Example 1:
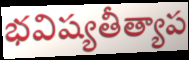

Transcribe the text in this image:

భవిష్యతీత్యాప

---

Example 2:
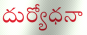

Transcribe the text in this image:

దుర్యోధనా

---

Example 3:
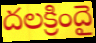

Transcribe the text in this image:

దలక్రిందై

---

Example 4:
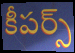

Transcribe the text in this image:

కీపర్స్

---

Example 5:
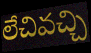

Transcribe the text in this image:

లేచివచ్చి